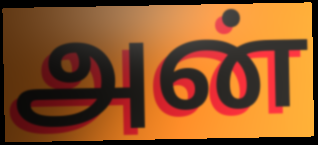
அன்